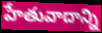
హేతువాదాన్ని